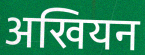
अखियन